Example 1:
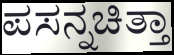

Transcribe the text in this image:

ಪಸನ್ನಚಿತ್ತಾ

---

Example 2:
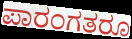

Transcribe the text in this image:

ಪಾರಂಗತರೂ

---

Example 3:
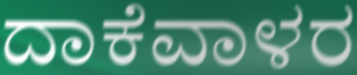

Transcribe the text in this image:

ದಾಕೆವಾಳರ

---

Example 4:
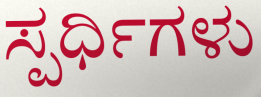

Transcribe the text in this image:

ಸ್ಪರ್ಧಿಗಳು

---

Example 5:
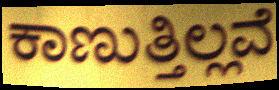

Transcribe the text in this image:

ಕಾಣುತ್ತಿಲ್ಲವೆ